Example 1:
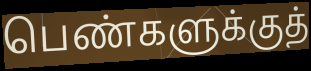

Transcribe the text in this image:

பெண்களுக்குத்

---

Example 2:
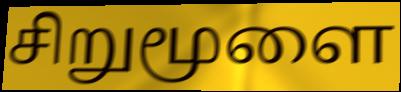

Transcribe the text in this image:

சிறுமூளை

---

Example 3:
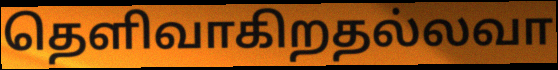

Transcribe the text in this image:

தெளிவாகிறதல்லவா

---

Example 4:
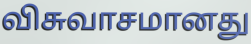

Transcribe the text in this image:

விசுவாசமானது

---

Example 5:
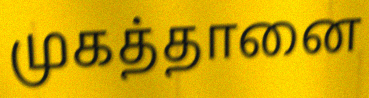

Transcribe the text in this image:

முகத்தானை